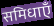
समिधाएँ